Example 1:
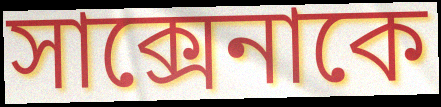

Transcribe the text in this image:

সাক্সেনাকে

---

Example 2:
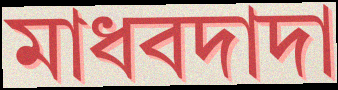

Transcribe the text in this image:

মাধবদাদা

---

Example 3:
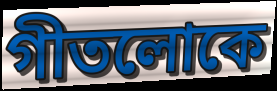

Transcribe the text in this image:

গীতলোকে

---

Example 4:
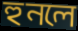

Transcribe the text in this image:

হুনলে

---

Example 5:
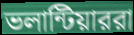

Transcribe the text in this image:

ভলান্টিয়াররা